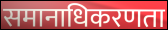
समानाधिकरणता